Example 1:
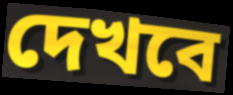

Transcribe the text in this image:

দেখবে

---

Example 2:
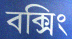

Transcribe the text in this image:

বক্সিং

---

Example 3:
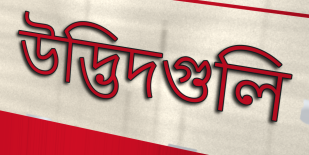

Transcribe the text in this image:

উদ্ভিদগুলি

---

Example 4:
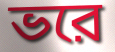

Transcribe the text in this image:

ভরে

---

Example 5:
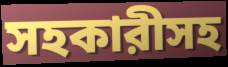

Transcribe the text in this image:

সহকারীসহ